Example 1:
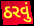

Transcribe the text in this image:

ઠરવું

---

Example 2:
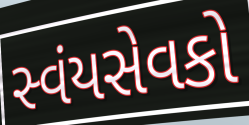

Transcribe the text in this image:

સ્વંયસેવકો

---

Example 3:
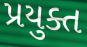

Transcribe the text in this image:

પ્રયુક્ત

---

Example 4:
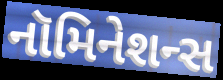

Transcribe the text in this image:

નૉમિનેશન્સ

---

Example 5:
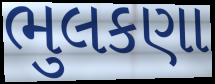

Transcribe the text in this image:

ભુલકણા